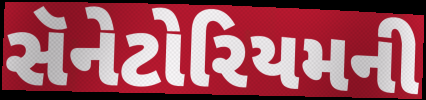
સૅનેટોરિયમની